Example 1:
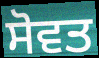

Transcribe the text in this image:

ਸੋਵਤ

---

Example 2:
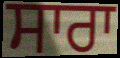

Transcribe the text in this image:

ਸਾਰਾ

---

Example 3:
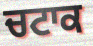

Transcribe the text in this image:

ਚਟਾਕ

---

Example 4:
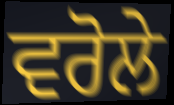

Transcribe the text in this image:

ਵਰੋਲੇ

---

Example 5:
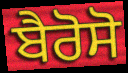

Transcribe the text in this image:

ਬੈਰੋਸੋ